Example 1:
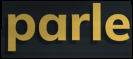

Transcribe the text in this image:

parle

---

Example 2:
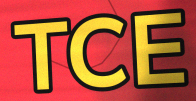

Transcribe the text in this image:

TCE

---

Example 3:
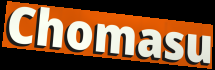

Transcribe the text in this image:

Chomasu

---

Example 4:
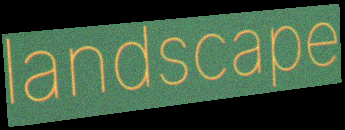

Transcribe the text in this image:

landscape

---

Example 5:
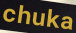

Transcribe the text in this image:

chuka